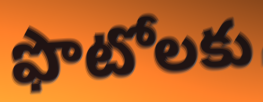
ఫొటోలకు